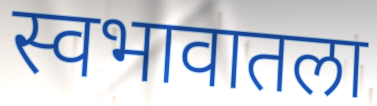
स्वभावातला